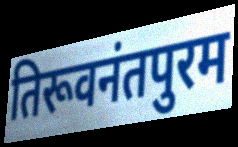
तिरूवनंतपुरम